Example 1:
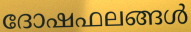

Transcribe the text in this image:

ദോഷഫലങ്ങൾ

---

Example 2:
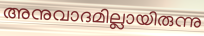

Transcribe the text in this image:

അനുവാദമില്ലായിരുന്നു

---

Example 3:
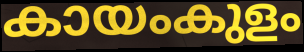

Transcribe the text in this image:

കായംകുളം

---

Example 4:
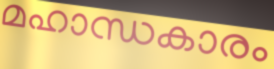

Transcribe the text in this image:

മഹാന്ധകാരം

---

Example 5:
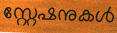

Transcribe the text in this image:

സ്റ്റേഷനുകൾ